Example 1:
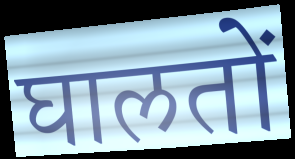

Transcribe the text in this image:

घालतों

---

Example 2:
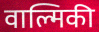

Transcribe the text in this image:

वाल्मिकी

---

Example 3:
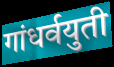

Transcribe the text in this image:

गांधर्वयुती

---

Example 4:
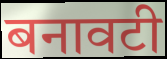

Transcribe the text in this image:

बनावटी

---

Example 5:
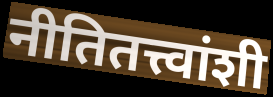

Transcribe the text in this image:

नीतितत्त्वांशी